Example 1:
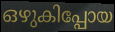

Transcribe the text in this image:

ഒഴുകിപ്പോയ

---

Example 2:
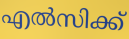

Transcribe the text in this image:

എൽസിക്ക്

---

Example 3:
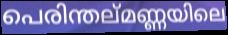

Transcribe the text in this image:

പെരിന്തല്മണ്ണയിലെ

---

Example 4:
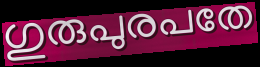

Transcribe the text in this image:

ഗുരുപുരപതേ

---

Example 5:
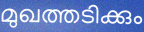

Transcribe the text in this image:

മുഖത്തടിക്കും